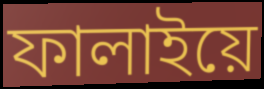
ফালাইয়ে